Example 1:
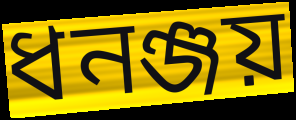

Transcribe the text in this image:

ধনঞ্জয়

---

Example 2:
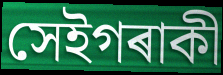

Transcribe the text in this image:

সেইগৰাকী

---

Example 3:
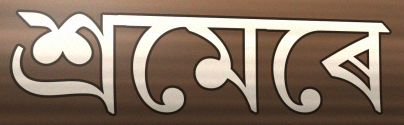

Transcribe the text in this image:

শ্ৰমেৰে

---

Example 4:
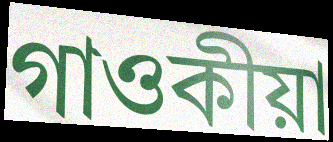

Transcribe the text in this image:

গাওকীয়া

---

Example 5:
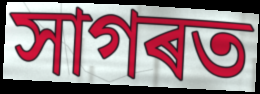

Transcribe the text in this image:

সাগৰত